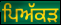
ਪਿਅੱਕੜ